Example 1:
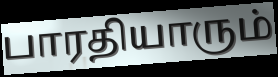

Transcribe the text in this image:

பாரதியாரும்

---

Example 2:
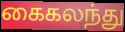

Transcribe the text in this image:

கைகலந்து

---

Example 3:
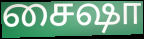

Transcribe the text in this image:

சைஷா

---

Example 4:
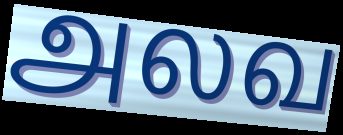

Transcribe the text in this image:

அலவ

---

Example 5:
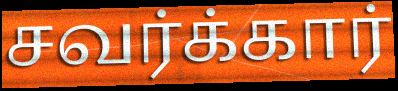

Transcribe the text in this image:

சவர்க்கார்